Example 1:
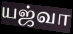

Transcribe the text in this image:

யஜ்வா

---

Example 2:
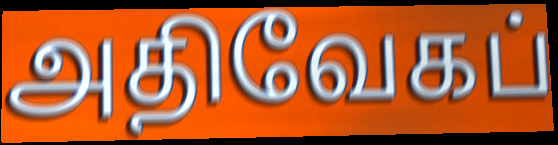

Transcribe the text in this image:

அதிவேகப்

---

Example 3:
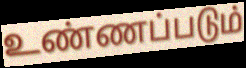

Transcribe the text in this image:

உண்ணப்படும்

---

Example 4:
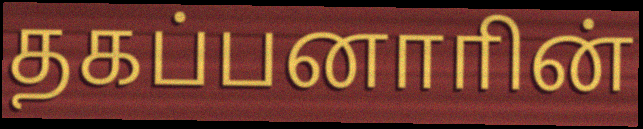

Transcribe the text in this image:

தகப்பனாரின்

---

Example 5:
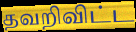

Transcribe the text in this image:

தவறிவிட்ட